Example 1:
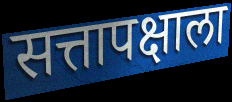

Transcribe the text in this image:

सत्तापक्षाला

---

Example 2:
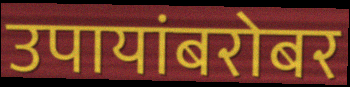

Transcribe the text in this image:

उपायांबरोबर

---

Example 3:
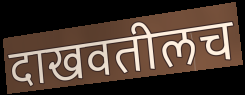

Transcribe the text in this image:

दाखवतीलच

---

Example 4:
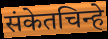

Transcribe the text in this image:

संकेतचिन्हे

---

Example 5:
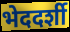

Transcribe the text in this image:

भेददर्शी